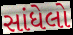
સાંધેલો